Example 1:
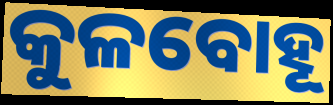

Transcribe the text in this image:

କୁଳବୋହୂ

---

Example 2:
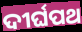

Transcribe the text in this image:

ଦୀର୍ଘପଥ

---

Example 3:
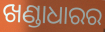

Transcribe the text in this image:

ଖଣ୍ଡାଧାରର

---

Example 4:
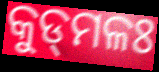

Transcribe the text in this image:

କୁଡ୍‌ମଳଃ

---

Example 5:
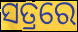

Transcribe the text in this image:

ସତ୍ରରେ